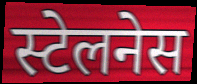
स्टेलनेस